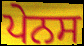
ਪੇਨਸ